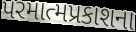
પરમાત્મપ્રકાશના